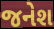
જનેશ